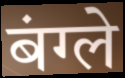
बंग्ले